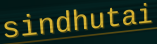
sindhutai